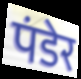
पंडेर